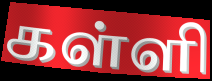
கள்ளி